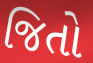
જિતો